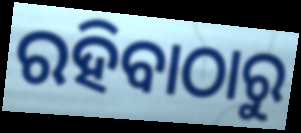
ରହିବାଠାରୁ